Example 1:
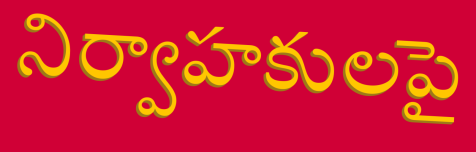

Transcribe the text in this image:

నిర్వాహకులపై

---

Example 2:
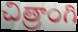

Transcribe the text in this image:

చిత్రాంగి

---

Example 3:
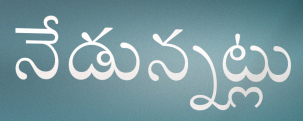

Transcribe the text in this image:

నేడున్నట్లు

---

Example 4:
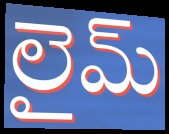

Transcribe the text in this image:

లైమ్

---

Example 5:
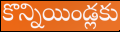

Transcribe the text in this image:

కొన్నియిండ్లకు